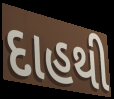
દાહથી